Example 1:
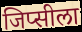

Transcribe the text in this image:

जिप्सीला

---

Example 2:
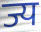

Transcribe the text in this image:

ज्य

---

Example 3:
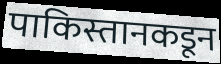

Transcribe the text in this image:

पाकिस्तानकडून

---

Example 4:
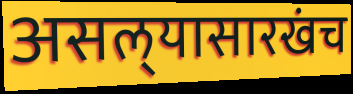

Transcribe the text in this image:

असल्यासारखंच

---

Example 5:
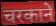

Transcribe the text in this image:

चरकाने